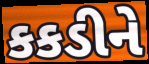
કકડીને